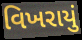
વિખરાયું